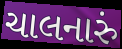
ચાલનારું